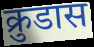
क्रुडास